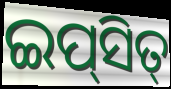
ଇପ୍‌ସିତ୍